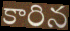
కారిన